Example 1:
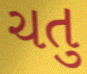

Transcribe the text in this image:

ચતુ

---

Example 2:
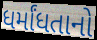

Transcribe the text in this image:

ધર્માંધતાનો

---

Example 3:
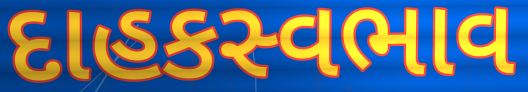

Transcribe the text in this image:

દાહકસ્વભાવ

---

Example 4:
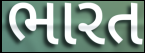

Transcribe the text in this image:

ભારત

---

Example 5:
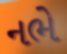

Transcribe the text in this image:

નભે